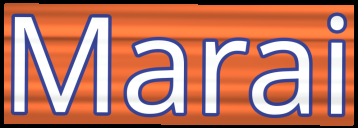
Marai